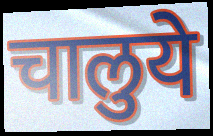
चालुये